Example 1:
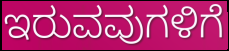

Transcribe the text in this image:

ಇರುವವುಗಳಿಗೆ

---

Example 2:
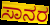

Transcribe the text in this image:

ಸಾನರ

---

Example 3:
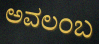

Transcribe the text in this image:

ಅವಲಂಬ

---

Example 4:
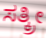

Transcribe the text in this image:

ಸತ್ಕ್ರೀ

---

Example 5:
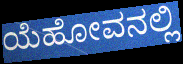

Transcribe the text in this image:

ಯೆಹೋವನಲ್ಲಿ